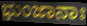
ಭುಂಜಾನಾಃ